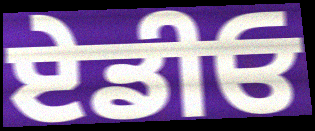
ਏਡੀਓ